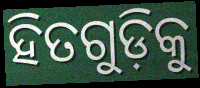
ହିତଗୁଡ଼ିକୁ